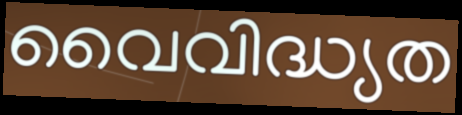
വൈവിദ്ധ്യത